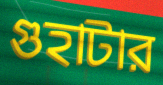
গুহাটার